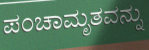
ಪಂಚಾಮೃತವನ್ನು